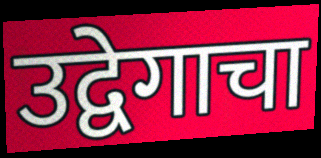
उद्वेगाचा